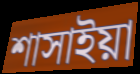
শাসাইয়া